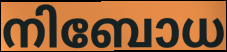
നിബോധ